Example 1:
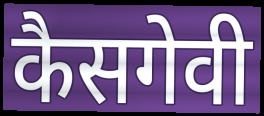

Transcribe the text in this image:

कैसगेवी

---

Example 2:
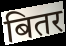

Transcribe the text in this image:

बितर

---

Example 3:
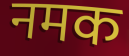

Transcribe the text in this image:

नमक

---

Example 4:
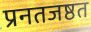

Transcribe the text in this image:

प्रनतजष्ठत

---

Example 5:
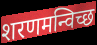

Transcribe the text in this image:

शरणमन्विच्छ